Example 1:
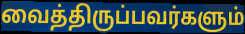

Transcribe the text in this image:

வைத்திருப்பவர்களும்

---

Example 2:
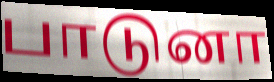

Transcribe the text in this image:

பாடுனா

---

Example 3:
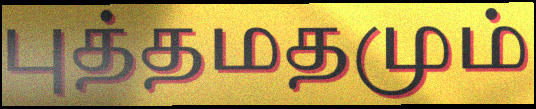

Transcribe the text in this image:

புத்தமதமும்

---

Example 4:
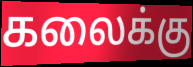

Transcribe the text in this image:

கலைக்கு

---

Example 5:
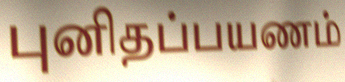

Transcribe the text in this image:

புனிதப்பயணம்